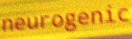
neurogenic